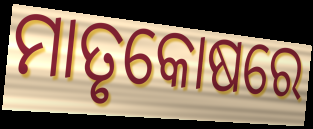
ମାତୃକୋଷରେ